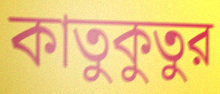
কাতুকুতুর